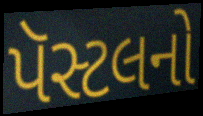
પૅસ્ટલનો